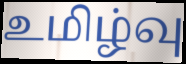
உமிழ்வு